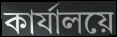
কার্যালয়ে